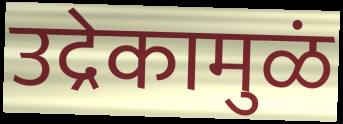
उद्रेकामुळं